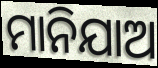
ମାନିଯାଅ